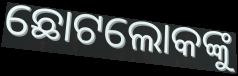
ଛୋଟଲୋକଙ୍କୁ